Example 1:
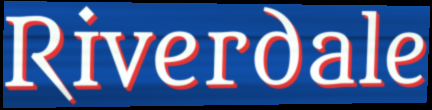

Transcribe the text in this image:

Riverdale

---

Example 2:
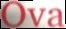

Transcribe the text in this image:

Ova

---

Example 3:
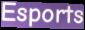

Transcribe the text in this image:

Esports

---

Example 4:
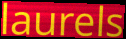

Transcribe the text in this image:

laurels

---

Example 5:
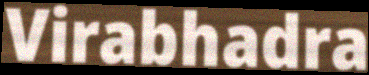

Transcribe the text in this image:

Virabhadra